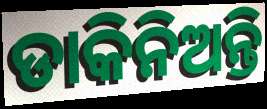
ଡାକିନିଅନ୍ତି